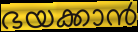
ഭയക്കാൻ